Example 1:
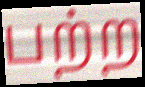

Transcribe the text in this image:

பற்ற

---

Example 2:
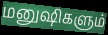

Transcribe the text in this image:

மனுஷிகளும்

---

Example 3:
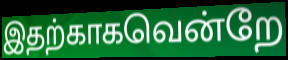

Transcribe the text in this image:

இதற்காகவென்றே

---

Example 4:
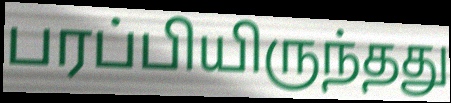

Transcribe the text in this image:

பரப்பியிருந்தது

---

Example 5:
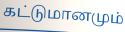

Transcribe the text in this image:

கட்டுமானமும்